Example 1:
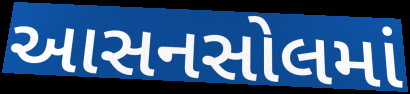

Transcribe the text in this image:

આસનસોલમાં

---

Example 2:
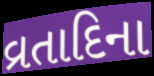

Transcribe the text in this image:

વ્રતાદિના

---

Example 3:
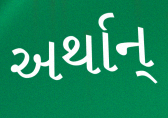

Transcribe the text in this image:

અર્થાન્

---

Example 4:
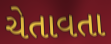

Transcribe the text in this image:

ચેતાવતા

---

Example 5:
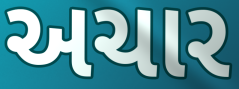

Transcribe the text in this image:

અચાર